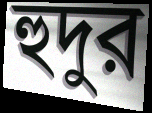
হুদুর